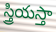
స్త్రియస్తా